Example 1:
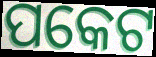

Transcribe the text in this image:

ପକେଟ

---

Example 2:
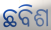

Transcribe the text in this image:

ଛବିଶ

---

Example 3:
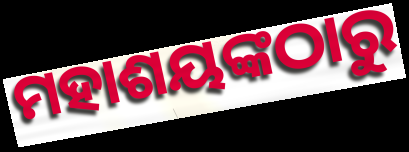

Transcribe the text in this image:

ମହାଶୟଙ୍କଠାରୁ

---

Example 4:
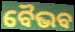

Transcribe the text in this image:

ବୈଭବ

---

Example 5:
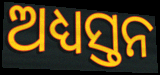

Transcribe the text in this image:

ଅଧ୍ୟସ୍ତନ